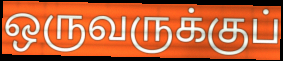
ஒருவருக்குப்